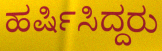
ಹರ್ಷಿಸಿದ್ದರು